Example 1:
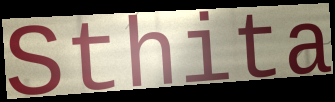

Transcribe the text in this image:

Sthita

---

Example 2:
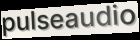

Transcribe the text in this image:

pulseaudio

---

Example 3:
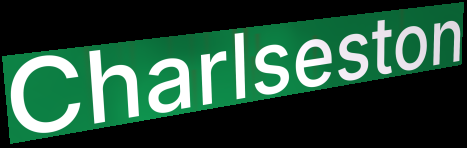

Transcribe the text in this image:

Charlseston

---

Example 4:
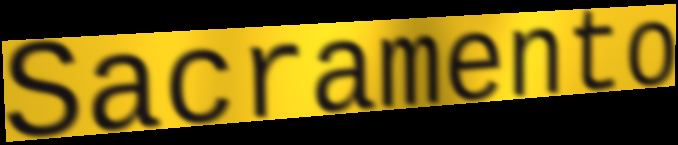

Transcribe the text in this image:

Sacramento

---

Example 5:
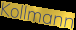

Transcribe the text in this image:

Kollmann